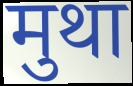
मुथा